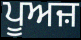
ਪੂਅਜ਼